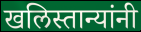
खलिस्तान्यांनी